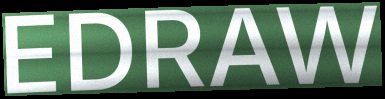
EDRAW